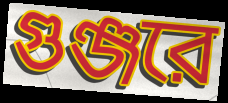
গুঞ্জরে